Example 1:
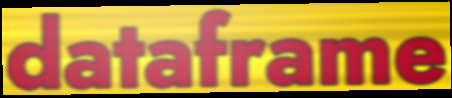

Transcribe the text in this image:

dataframe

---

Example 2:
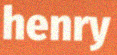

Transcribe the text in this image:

henry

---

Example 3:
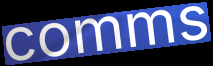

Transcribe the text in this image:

comms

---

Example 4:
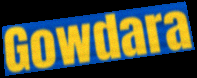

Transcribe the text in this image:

Gowdara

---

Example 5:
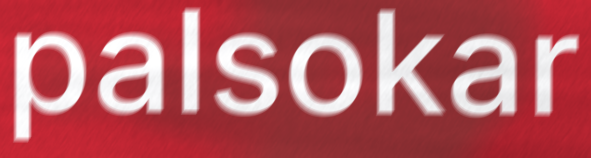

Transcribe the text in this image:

palsokar